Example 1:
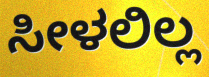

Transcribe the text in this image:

ಸೀಳಲಿಲ್ಲ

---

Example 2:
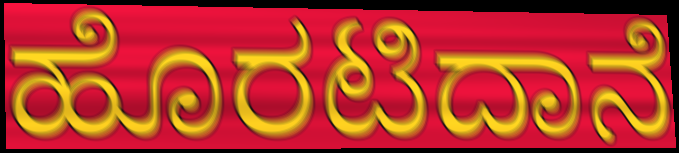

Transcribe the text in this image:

ಹೊರಟಿದಾನೆ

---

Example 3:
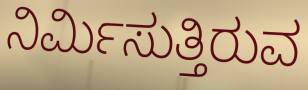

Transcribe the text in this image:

ನಿರ್ಮಿಸುತ್ತಿರುವ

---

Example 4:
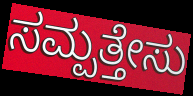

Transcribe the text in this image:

ಸಮ್ಪತ್ತೇಸು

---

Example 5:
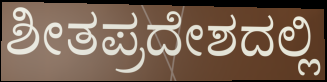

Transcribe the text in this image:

ಶೀತಪ್ರದೇಶದಲ್ಲಿ